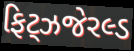
ફિટ્ઝજેરલ્ડ